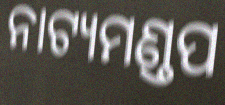
ନାଟ୍ୟମଣ୍ଡପ